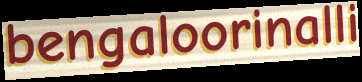
bengaloorinalli